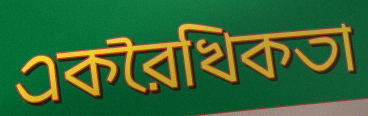
একরৈখিকতা